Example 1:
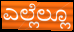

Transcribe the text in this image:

ಎಲ್ಲೆಲ್ಲೂ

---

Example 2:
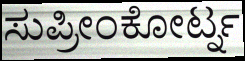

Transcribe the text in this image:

ಸುಪ್ರೀಂಕೋರ್ಟ್ನ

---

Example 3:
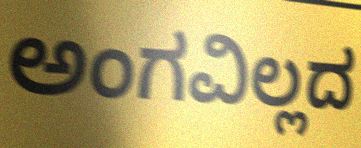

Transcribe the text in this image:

ಅಂಗವಿಲ್ಲದ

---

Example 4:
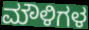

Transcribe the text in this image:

ಮೌಳಿಗಳ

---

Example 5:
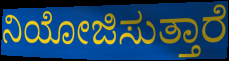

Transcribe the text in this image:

ನಿಯೋಜಿಸುತ್ತಾರೆ